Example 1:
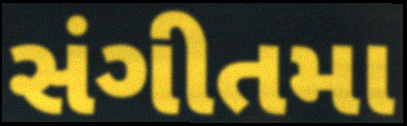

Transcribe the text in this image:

સંગીતમા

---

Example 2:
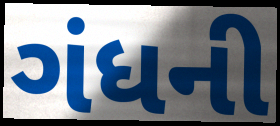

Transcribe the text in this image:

ગંધની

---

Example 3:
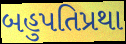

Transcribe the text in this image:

બહુપતિપ્રથા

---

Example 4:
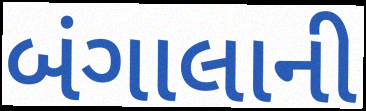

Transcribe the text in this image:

બંગાલાની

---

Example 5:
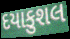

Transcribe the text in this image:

દયાકુશલ